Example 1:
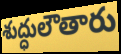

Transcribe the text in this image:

శుద్ధులౌతారు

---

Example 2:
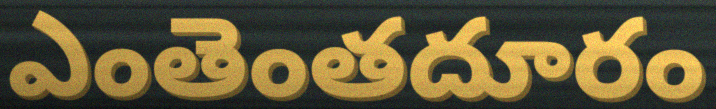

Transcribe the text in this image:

ఎంతెంతదూరం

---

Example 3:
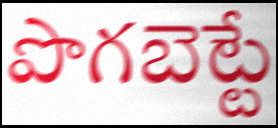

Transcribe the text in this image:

పొగబెట్టే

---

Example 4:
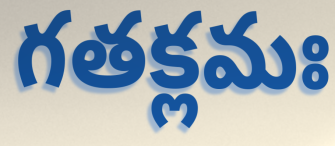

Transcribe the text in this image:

గతక్లమః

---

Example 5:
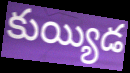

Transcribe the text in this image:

కుయ్యిడ